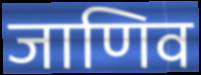
जाणिव